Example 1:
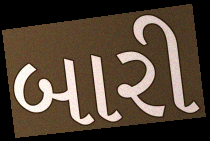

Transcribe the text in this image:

બારી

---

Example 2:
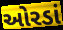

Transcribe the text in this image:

ઓરડાં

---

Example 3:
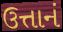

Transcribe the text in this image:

ઉત્તાનં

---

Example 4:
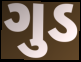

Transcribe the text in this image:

ગુડ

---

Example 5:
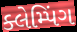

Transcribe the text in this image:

ક્લેમ્પિંગ